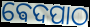
ଵେଦପାଠ